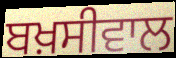
ਬਖ਼ਸੀਵਾਲ